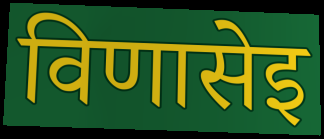
विणासेइ